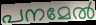
പനമേൽ